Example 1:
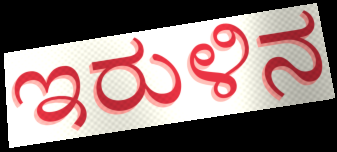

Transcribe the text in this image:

ಇರುಳಿನ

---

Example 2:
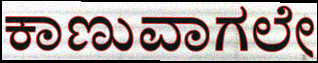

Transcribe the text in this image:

ಕಾಣುವಾಗಲೇ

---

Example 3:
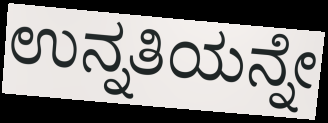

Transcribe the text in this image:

ಉನ್ನತಿಯನ್ನೇ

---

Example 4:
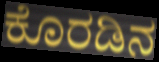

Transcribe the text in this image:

ಕೊರಡಿನ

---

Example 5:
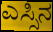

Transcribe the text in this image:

ಎಸ್ಸಿನ